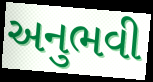
અનુભવી